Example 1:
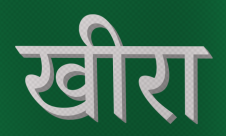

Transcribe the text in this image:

खीरा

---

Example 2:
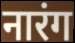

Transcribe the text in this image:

नारंग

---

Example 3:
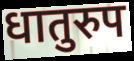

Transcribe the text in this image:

धातुरुप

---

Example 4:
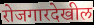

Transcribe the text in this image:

रोजगारदेखील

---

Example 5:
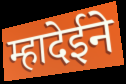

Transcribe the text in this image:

म्हादेईने